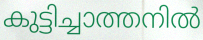
കുട്ടിച്ചാത്തനിൽ